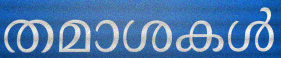
തമാശകൾ